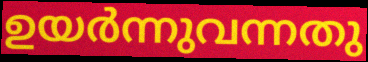
ഉയർന്നുവന്നതു